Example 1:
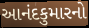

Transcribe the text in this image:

આનંદકુમારનો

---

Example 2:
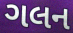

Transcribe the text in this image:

ગલન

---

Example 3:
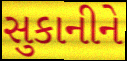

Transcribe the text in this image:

સુકાનીને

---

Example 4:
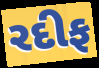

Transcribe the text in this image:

રદીફ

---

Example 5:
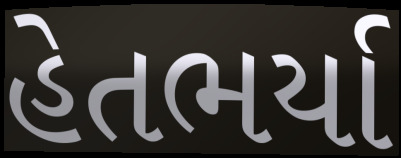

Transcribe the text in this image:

હેતભર્યા